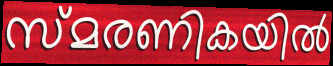
സ്മരണികയിൽ